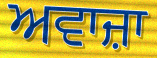
ਅਵਾਜ਼ਾ